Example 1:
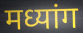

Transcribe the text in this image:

मध्यांग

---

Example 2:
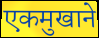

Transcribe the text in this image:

एकमुखाने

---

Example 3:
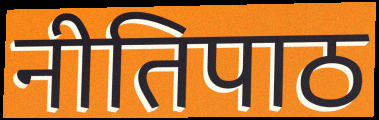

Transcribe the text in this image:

नीतिपाठ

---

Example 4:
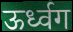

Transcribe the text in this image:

ऊर्ध्वग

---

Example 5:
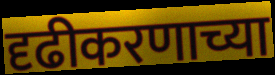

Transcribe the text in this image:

दृढीकरणाच्या